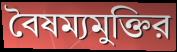
বৈষম্যমুক্তির